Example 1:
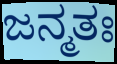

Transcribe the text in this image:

ಜನ್ಮತಃ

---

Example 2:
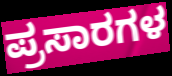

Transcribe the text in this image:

ಪ್ರಸಾರಗಳ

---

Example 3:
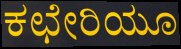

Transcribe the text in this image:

ಕಛೇರಿಯೂ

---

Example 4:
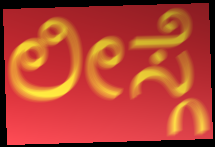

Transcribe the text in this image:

ಲೀಸ್ಗೆ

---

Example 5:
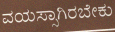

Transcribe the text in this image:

ವಯಸ್ಸಾಗಿರಬೇಕು